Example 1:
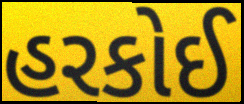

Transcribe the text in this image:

હરકોઈ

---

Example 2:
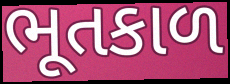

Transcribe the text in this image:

ભૂતકાળ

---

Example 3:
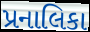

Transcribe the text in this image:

પ્રનાલિકા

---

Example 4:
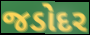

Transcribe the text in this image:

જડોદર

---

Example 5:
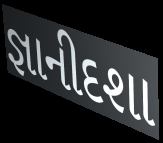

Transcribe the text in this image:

જ્ઞાનીદશા